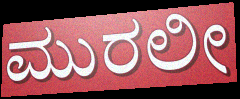
ಮುರಲೀ